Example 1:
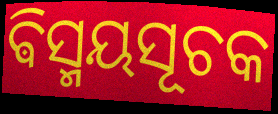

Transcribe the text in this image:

ଵିସ୍ମୟସୂଚକ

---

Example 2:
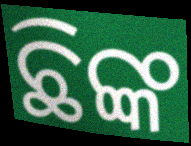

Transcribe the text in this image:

ଛିଙ୍କ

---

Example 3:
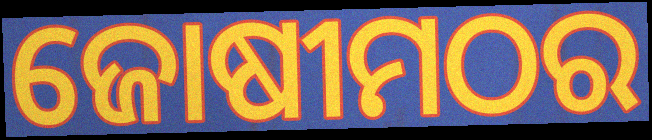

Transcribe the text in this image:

ଜୋଷୀମଠର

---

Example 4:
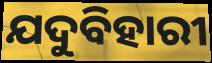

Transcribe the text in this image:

ଯଦୁବିହାରୀ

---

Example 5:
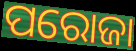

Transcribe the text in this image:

ପରୋଜା